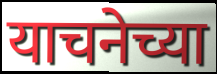
याचनेच्या